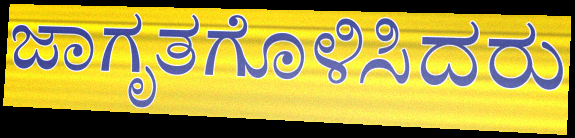
ಜಾಗೃತಗೊಳಿಸಿದರು